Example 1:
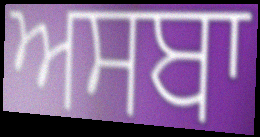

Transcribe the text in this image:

ਅਸਬਾ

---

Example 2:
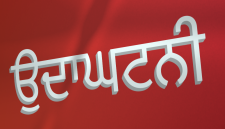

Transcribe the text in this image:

ਉਦਾਘਟਨੀ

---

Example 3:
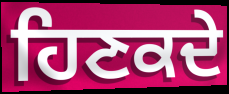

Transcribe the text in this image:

ਹਿਣਕਦੇ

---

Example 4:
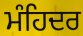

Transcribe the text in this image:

ਮੰਹਿਦਰ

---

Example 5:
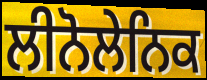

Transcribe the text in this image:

ਲੀਨੋਲੇਨਿਕ